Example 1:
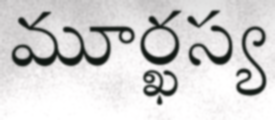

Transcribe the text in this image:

మూర్ఖస్య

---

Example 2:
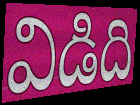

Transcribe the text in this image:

విడిది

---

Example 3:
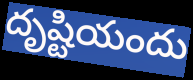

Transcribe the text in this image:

దృష్టియందు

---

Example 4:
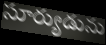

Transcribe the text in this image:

సూర్యుడును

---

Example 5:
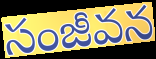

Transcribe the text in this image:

సంజీవన